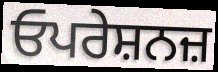
ਓਪਰੇਸ਼ਨਜ਼